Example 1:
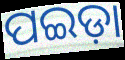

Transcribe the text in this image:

ପଇଡ଼ା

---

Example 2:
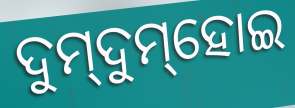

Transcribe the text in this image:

ଦୁମ୍‌ଦୁମ୍‌ହୋଇ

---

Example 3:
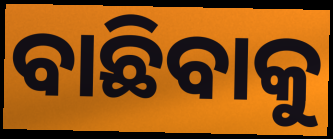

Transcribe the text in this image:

ବାଛିବାକୁ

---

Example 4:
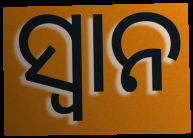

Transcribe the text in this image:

ସ୍ୱାନ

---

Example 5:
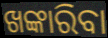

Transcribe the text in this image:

ଖଙ୍କାରିବା